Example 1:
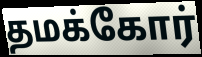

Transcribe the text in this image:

தமக்கோர்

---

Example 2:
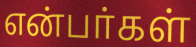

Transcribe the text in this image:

என்பர்கள்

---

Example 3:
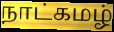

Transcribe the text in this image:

நாட்கமழ்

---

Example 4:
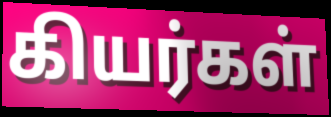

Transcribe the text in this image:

கியர்கள்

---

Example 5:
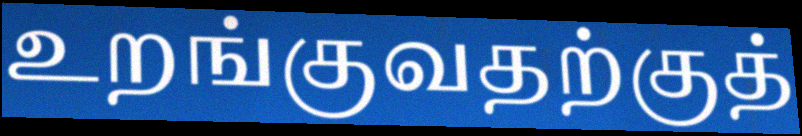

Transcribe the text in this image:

உறங்குவதற்குத்